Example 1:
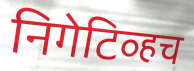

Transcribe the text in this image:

निगेटिव्हच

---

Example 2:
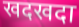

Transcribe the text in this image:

खदखदा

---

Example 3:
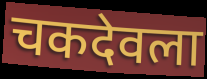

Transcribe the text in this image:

चकदेवला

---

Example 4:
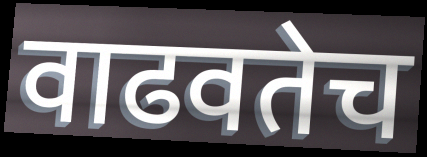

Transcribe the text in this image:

वाढवतेच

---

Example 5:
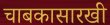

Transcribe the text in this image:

चाबकासारखी